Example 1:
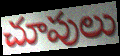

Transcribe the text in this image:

చూపులు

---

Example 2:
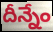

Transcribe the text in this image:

దీన్నేం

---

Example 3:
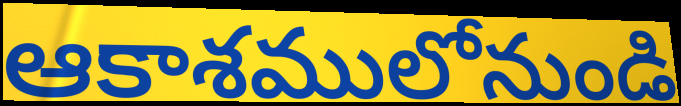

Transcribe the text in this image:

ఆకాశములోనుండి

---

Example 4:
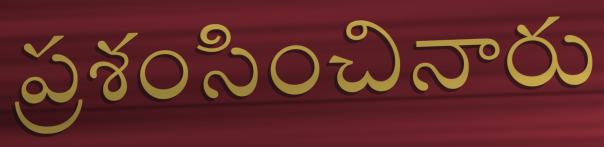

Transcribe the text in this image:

ప్రశంసించినారు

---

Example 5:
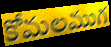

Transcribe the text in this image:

కోమలముగ